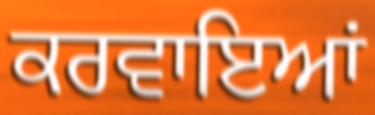
ਕਰਵਾਇਆਂ